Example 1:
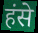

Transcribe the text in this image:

हंसे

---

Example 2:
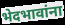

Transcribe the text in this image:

भेदभावांना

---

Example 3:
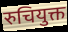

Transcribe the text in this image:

रुचियुक्त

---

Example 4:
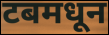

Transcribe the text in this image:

टबमधून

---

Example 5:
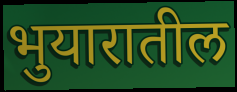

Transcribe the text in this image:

भुयारातील